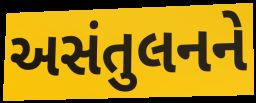
અસંતુલનને